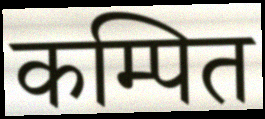
कम्पित